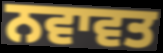
ਨਵਾਵਤ